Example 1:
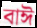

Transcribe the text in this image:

বাঈ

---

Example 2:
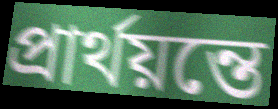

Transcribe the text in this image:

প্রার্থয়ন্তে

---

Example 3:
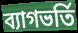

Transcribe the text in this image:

ব্যাগভর্তি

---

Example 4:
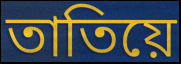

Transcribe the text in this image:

তাতিয়ে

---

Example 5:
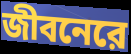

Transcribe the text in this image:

জীবনেরে